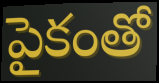
పైకంతో